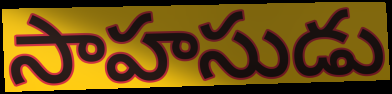
సాహసుడు